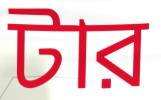
টার